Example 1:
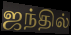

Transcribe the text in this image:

ஜந்தில்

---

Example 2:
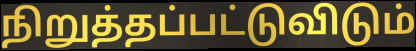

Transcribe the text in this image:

நிறுத்தப்பட்டுவிடும்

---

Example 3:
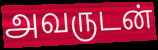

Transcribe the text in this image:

அவருடன்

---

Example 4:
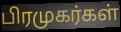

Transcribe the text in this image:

பிரமுகர்கள்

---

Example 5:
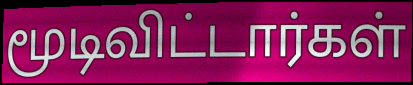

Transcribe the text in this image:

மூடிவிட்டார்கள்